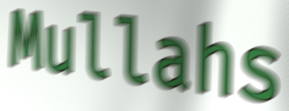
Mullahs